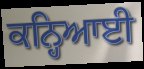
ਕਨ੍ਹਿਆਈ